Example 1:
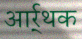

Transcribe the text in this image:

आर्र्थक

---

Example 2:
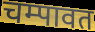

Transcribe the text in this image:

चम्पावत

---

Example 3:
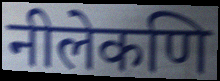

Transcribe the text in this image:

नीलेकणि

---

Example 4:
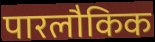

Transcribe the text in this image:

पारलौकिक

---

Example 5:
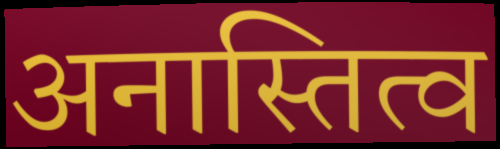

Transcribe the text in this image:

अनास्तित्व